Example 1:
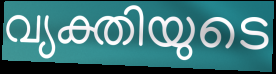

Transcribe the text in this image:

വ്യക്തിയുടെ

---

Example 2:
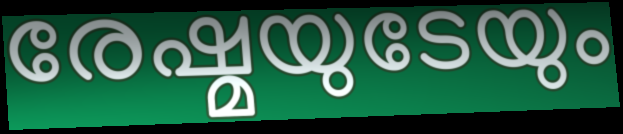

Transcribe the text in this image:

രേഷ്മയുടേയും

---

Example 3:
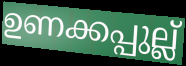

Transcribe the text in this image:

ഉണക്കപ്പുല്ല്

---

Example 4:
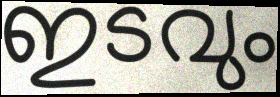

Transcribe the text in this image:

ഇടവും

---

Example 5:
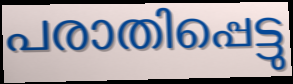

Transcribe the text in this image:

പരാതിപ്പെട്ടു